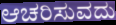
ಆಚರಿಸುವದು